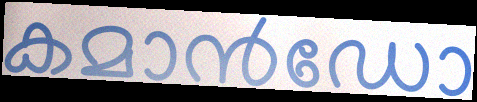
കമാൻഡോ